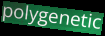
polygenetic